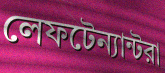
লেফটেন্যান্টরা